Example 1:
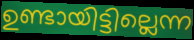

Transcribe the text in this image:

ഉണ്ടായിട്ടില്ലെന്ന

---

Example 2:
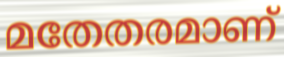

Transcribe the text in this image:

മതേതരമാണ്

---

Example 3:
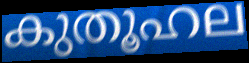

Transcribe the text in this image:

കുതൂഹല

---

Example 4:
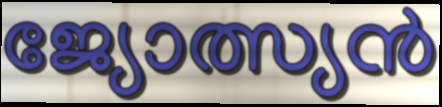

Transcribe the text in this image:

ജ്യോത്സ്യൻ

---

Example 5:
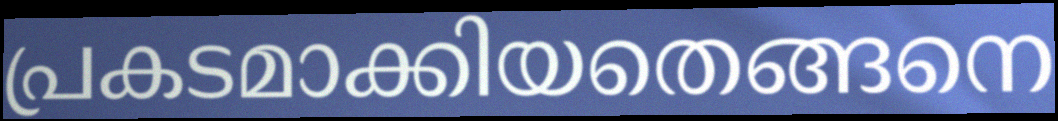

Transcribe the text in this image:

പ്രകടമാക്കിയതെങ്ങനെ